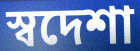
স্বদেশা